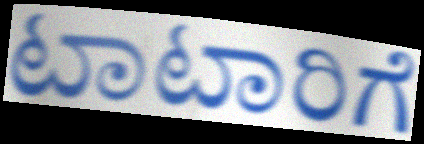
ಟಾಟಾರಿಗೆ